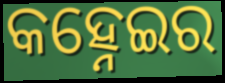
କହ୍ନେଇର